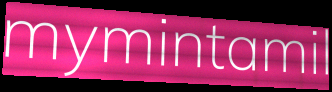
mymintamil